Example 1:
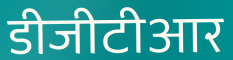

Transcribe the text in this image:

डीजीटीआर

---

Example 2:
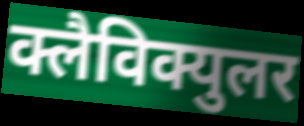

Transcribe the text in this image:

क्लैविक्युलर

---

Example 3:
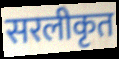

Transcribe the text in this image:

सरलीकृत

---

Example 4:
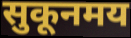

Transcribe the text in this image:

सुकूनमय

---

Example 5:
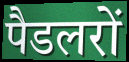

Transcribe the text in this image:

पैडलरों